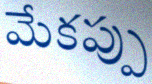
మేకప్పు